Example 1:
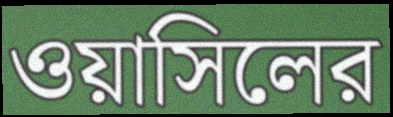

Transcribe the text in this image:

ওয়াসিলের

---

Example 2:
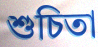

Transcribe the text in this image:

শুচিতা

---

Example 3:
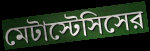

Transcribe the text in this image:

মেটাস্টেসিসের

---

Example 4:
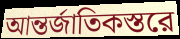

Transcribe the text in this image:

আন্তর্জাতিকস্তরে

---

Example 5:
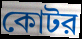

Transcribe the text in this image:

কোটর